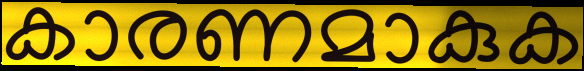
കാരണമാകുക